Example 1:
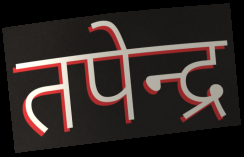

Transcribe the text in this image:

तपेन्द्र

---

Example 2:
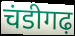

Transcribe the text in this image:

चंडीगढ़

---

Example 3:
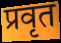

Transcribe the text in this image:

प्रवृत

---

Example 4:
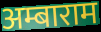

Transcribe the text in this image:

अम्बाराम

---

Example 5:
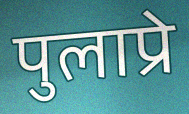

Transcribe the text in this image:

पुलाप्रे